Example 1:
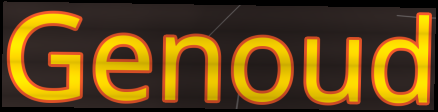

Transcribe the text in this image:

Genoud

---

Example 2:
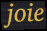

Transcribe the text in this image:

joie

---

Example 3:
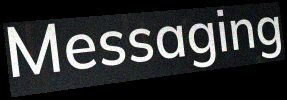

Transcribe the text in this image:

Messaging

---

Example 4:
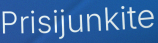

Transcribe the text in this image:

Prisijunkite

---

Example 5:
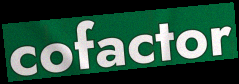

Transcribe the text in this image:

cofactor